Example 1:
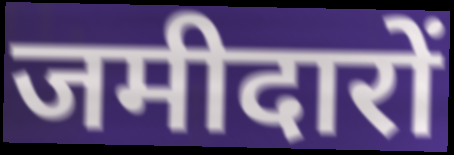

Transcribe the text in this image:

जमीदारों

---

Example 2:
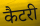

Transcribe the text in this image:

कैटरी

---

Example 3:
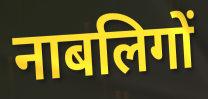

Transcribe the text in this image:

नाबलिगों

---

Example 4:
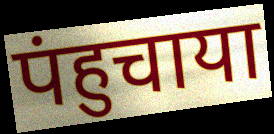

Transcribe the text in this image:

पंहुचाया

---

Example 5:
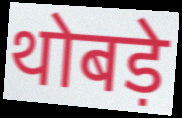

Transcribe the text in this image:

थोबड़े